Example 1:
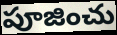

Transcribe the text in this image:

పూజించు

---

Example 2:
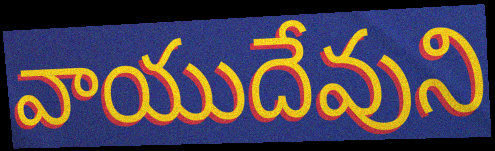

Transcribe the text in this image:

వాయుదేవుని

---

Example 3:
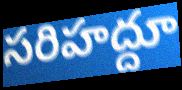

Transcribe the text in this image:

సరిహద్దూ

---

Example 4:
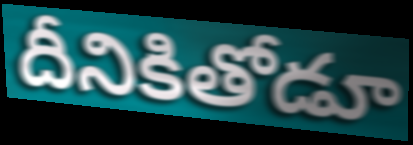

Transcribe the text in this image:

దీనికితోడూ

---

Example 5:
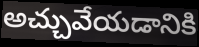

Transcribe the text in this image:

అచ్చువేయడానికి